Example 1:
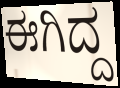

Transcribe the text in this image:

ಈಗಿದ್ದ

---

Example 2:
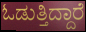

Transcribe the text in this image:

ಓಡುತ್ತಿದ್ದಾರೆ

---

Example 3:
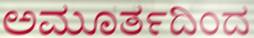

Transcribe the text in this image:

ಅಮೂರ್ತದಿಂದ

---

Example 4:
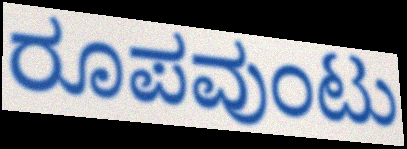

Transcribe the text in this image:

ರೂಪವುಂಟು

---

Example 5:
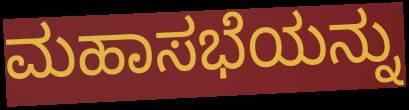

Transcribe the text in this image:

ಮಹಾಸಭೆಯನ್ನು